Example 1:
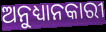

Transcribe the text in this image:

ଅନୁଧ୍ୟାନକାରୀ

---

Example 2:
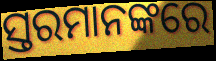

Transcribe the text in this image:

ସ୍ତରମାନଙ୍କରେ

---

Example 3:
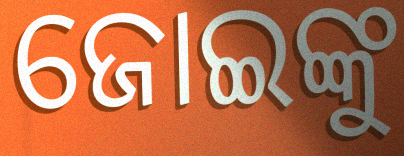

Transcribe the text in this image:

ଜୋଇଙ୍କୁ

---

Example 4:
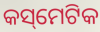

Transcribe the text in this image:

କସ୍‌ମେଟିକ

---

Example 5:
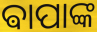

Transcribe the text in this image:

ଵାପାଙ୍କ